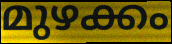
മുഴക്കം